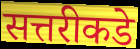
सत्तरीकडे